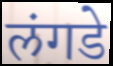
लंगडे